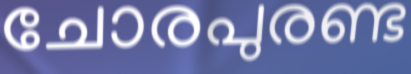
ചോരപുരണ്ട